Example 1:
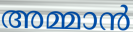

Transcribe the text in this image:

അമ്മാൻ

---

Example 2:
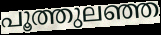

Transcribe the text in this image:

പൂത്തുലഞ്ഞ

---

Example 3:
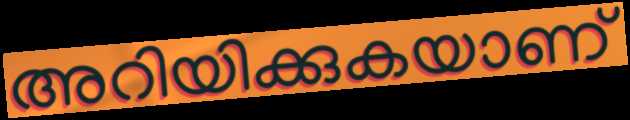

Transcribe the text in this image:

അറിയിക്കുകയാണ്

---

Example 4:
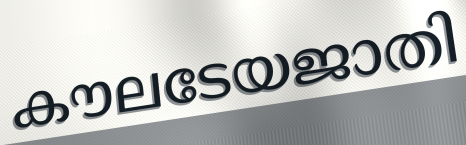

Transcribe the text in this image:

കൗലടേയജാതി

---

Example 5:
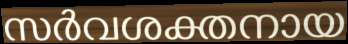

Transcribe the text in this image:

സർവശക്തനായ